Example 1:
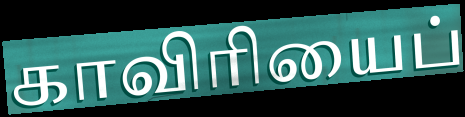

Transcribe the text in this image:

காவிரியைப்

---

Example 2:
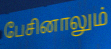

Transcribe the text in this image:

பேசினாலும்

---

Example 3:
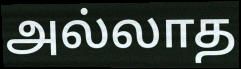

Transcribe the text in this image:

அல்லாத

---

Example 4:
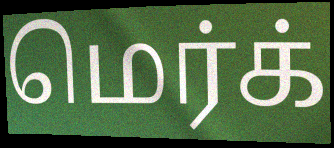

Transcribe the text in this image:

மெர்க்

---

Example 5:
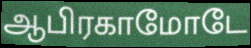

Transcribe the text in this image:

ஆபிரகாமோடே